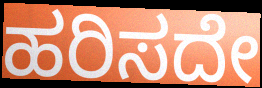
ಹರಿಸದೇ